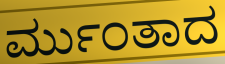
ರ್ಮುಂತಾದ